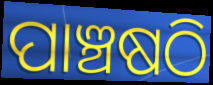
ପାଞ୍ଚଷଠି